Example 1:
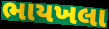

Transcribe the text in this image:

ભાયખલા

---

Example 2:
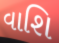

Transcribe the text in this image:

વાશિ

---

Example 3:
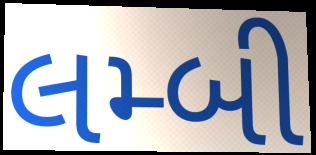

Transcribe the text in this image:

લમ્બી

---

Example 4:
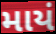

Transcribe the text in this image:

માયં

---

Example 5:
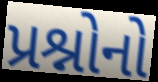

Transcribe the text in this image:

પ્રશ્નોનો